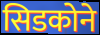
सिडकोने